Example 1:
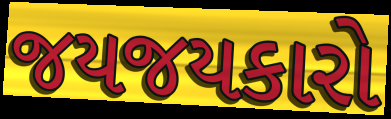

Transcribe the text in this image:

જયજયકારો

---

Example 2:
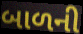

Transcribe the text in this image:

બાળની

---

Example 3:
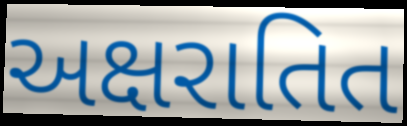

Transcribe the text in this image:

અક્ષરાતિત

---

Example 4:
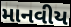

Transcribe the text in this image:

માનવીય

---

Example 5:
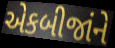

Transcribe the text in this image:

એકબીજાંને